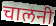
चालनी